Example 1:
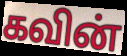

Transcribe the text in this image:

கவின்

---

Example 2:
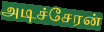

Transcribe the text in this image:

அடிச்சேரன்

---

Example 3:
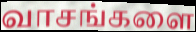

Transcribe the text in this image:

வாசங்களை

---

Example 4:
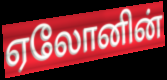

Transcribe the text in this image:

ஏலோனின்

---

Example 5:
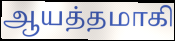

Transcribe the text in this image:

ஆயத்தமாகி